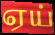
ஏய்